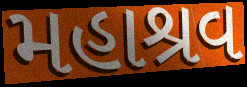
મહાશ્રવ